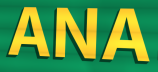
ANA